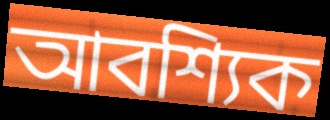
আবশ্যিক